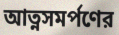
আত্নসমর্পণের